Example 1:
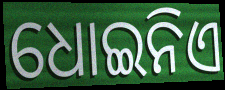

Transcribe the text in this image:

ଧୋଇନିଏ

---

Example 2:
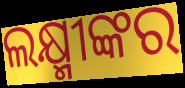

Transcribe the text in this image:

ଲକ୍ଷ୍ମୀଙ୍କର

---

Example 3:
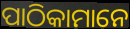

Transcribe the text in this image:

ପାଠିକାମାନେ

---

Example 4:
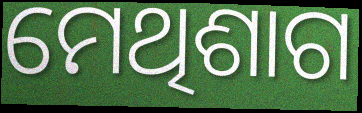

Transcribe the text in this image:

ମେଥିଶାଗ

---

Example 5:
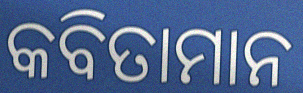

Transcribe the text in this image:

କବିତାମାନ